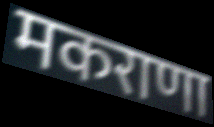
मकराणा